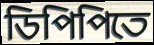
ডিপিপিতে